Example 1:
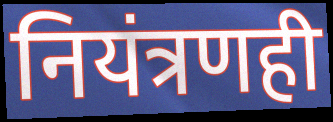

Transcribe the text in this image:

नियंत्रणही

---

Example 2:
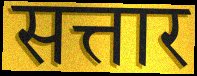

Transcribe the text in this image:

सत्तार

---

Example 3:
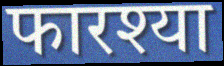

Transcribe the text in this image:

फारश्या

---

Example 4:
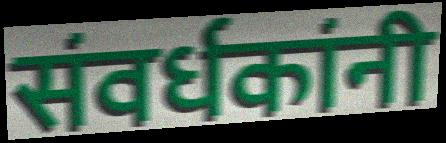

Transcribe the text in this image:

संवर्धकांनी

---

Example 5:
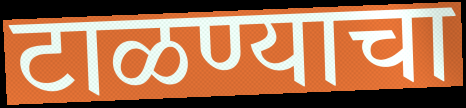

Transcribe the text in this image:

टाळण्याचा